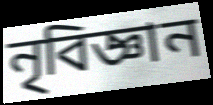
নৃবিজ্ঞান